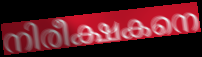
നിരീക്ഷകനെ